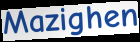
Mazighen